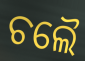
ଚଲୈ